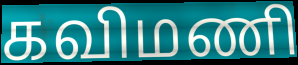
கவிமணி